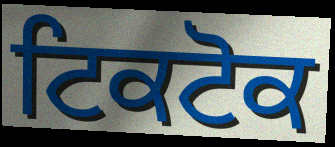
ਟਿਕਟੋਕ